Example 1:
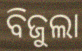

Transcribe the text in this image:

ବିଜୁଲା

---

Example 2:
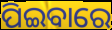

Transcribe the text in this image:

ପିଇବାରେ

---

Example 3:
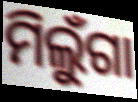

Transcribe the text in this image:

ମିଲୁଁଗା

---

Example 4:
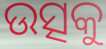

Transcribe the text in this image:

ଉତ୍ସକୁ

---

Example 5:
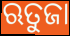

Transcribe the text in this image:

ଋତୁଜା